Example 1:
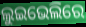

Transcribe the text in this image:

ଲୁଇଭେଲିରେ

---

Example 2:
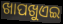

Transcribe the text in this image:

ଖାପଖୁଏଇ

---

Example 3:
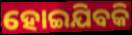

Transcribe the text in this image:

ହୋଇଯିବକି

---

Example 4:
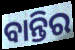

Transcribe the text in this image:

ବାନ୍ତିର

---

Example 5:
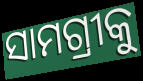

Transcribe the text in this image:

ସାମଗ୍ରୀକୁ